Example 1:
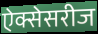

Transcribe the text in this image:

ऐक्सेसरीज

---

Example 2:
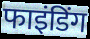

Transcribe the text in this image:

फाइंडिंग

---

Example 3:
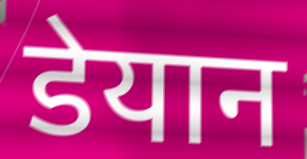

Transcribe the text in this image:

डेयान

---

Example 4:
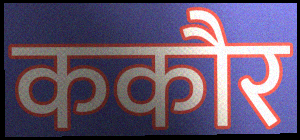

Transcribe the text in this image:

ककौर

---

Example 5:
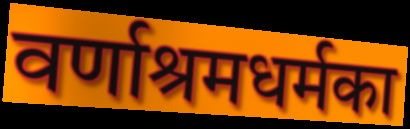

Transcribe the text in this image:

वर्णाश्रमधर्मका